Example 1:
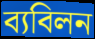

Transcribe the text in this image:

ব্যবিলন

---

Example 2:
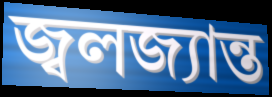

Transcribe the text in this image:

জ্বলজ্যান্ত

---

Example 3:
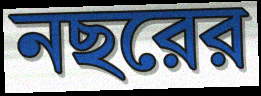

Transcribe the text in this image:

নছরের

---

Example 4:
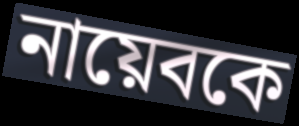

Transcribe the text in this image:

নায়েবকে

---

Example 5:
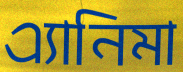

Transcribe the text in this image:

এ্যানিমা